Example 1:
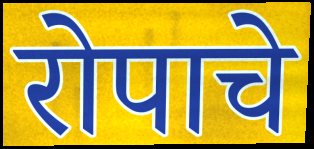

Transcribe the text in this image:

रोपाचे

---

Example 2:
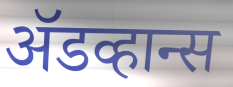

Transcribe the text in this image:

ॲडव्हान्स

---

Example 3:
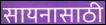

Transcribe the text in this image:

सायनासाठी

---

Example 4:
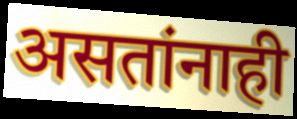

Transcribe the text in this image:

असतांनाही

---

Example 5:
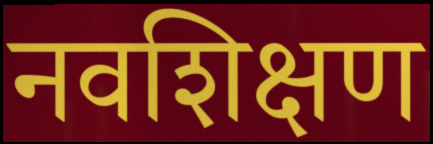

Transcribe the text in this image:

नवशिक्षण